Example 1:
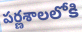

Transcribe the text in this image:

పర్ణశాలలోకి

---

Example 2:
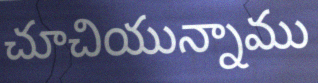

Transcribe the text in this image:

చూచియున్నాము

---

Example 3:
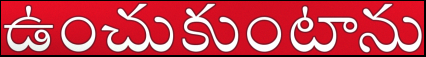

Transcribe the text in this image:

ఉంచుకుంటాను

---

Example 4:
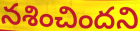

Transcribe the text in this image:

నశించిందని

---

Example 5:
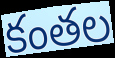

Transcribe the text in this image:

కంతల